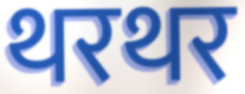
थरथर